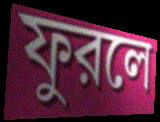
ফুরলে